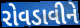
રોવડાવીને